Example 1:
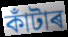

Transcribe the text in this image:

কাঁটাৰ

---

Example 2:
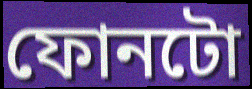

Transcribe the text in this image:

ফোনটো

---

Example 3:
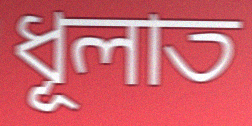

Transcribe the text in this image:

ধূলাত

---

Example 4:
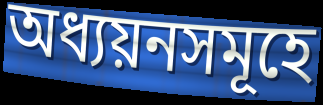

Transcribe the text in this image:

অধ্যয়নসমূহে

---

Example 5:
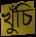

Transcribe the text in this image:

খুঁচি